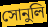
সোনুলি